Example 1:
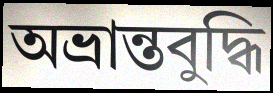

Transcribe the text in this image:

অভ্রান্তবুদ্ধি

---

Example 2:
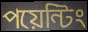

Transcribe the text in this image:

পয়েন্টিং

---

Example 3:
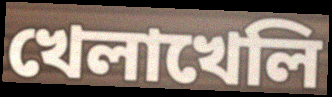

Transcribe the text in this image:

খেলাখেলি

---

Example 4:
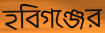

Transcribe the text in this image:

হবিগঞ্জের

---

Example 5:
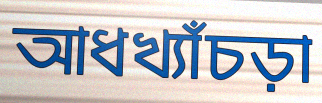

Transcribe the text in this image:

আধখ্যাঁচড়া